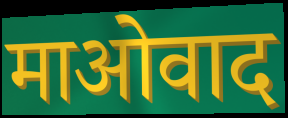
माओवाद